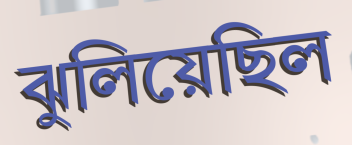
ঝুলিয়েছিল